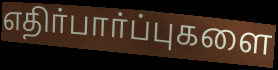
எதிர்பார்ப்புகளை